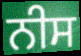
ਨੀਸ